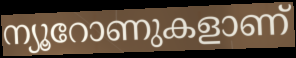
ന്യൂറോണുകളാണ്